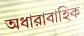
অধারাবাহিক